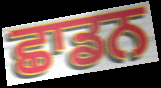
ਛਾਡਨ